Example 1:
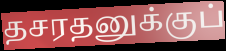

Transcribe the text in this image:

தசரதனுக்குப்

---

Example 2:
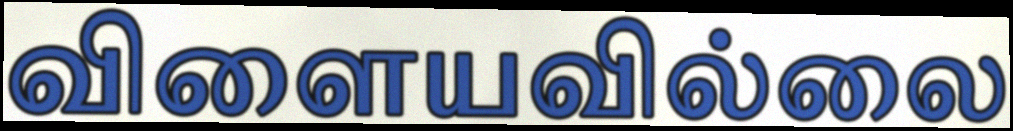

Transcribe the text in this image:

விளையவில்லை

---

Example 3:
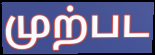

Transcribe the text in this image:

முற்பட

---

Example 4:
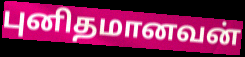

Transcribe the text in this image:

புனிதமானவன்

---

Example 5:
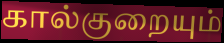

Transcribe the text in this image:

கால்குறையும்